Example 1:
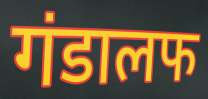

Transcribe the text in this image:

गंडालफ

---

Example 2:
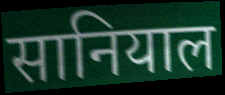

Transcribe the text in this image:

सानियाल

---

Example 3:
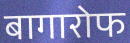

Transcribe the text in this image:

बागारोफ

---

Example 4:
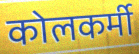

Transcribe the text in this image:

कोलकर्मी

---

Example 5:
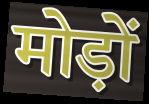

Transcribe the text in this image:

मोड़ों